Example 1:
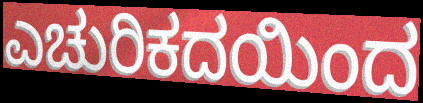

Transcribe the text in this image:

ಎಚುರಿಕದಯಿಂದ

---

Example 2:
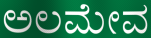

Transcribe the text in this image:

ಅಲಮೇವ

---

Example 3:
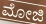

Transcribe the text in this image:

ಮೋಜಿ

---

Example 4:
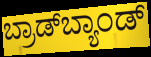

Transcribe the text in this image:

ಬ್ರಾಡ್‌ಬ್ಯಾಂಡ್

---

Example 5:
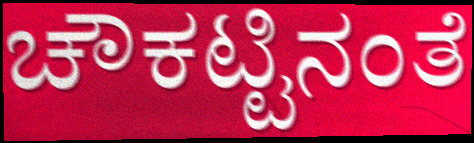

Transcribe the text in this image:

ಚೌಕಟ್ಟಿನಂತೆ